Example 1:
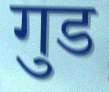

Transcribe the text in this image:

गुड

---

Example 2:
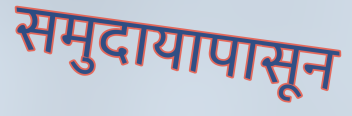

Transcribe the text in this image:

समुदायापासून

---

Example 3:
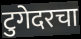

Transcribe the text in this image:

टुगेदरचा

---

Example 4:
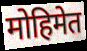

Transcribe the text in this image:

मोहिमेत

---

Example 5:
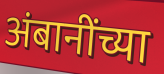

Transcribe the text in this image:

अंबानींच्या